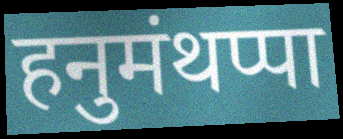
हनुमंथप्पा